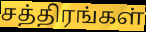
சத்திரங்கள்